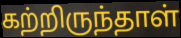
கற்றிருந்தாள்